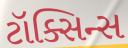
ટૉક્સિન્સ